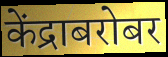
केंद्राबरोबर